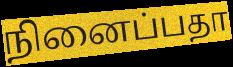
நினைப்பதா